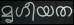
മൃഗീയത